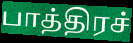
பாத்திரச்